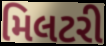
મિલટરી